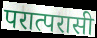
परात्परासी